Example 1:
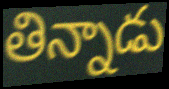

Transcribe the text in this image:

తిన్నాడు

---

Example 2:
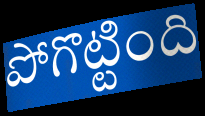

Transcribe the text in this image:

పోగొట్టింది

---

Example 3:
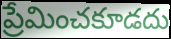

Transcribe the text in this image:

ప్రేమించకూడదు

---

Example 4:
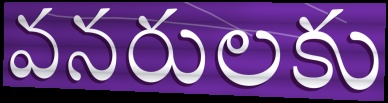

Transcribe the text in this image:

వనరులకు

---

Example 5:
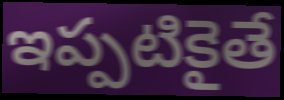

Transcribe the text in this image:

ఇప్పటికైతే